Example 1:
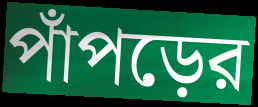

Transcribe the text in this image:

পাঁপড়ের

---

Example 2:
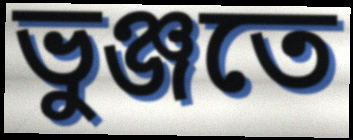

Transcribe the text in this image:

ভুঞ্জতে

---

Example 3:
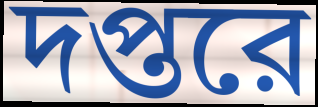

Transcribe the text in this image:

দপ্তরে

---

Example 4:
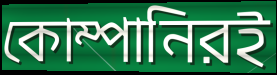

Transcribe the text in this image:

কোম্পানিরই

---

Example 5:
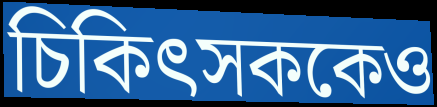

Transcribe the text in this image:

চিকিৎসককেও